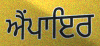
ਐਂਪਾਇਰ